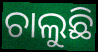
ଚାଲୁଛି